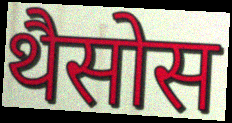
थैसोस